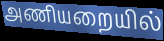
அணியறையில்